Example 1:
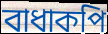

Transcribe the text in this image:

বাধাকপি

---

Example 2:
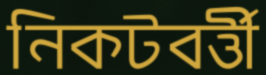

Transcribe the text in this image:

নিকটবর্ত্তী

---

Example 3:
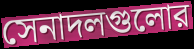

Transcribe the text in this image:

সেনাদলগুলোর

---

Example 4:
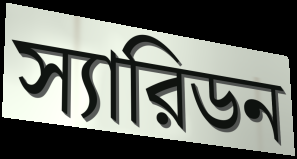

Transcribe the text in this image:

স্যারিডন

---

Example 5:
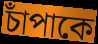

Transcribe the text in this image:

চাঁপাকে